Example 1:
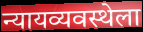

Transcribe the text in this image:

न्यायव्यवस्थेला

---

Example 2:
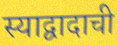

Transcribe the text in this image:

स्याद्वादाची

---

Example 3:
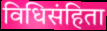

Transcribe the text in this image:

विधिसंहिता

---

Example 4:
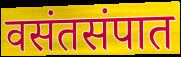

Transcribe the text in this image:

वसंतसंपात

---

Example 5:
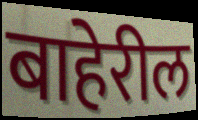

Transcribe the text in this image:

बाहेरील